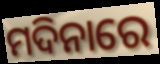
ମଦିନାରେ